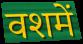
वशमें